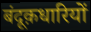
बंदूक़धारियों